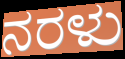
ನರಳು